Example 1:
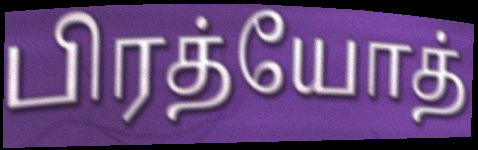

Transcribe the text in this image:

பிரத்யோத்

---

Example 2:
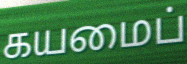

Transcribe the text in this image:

கயமைப்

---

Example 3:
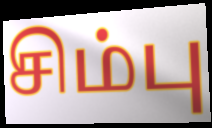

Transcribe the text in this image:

சிம்பு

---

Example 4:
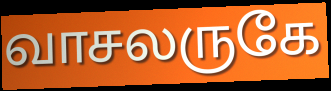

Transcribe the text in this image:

வாசலருகே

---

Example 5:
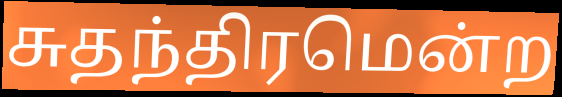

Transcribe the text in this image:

சுதந்திரமென்ற